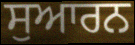
ਸੁਆਰਨ